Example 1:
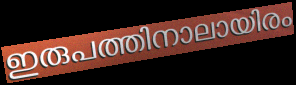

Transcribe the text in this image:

ഇരുപത്തിനാലായിരം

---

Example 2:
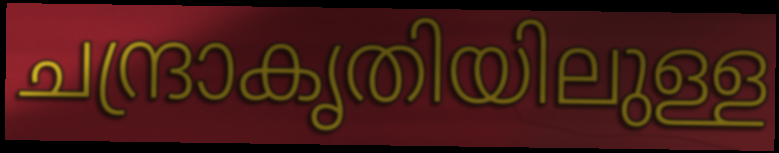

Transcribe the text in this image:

ചന്ദ്രാകൃതിയിലുള്ള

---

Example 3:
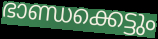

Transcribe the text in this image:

ഭാണ്ഡക്കെട്ടും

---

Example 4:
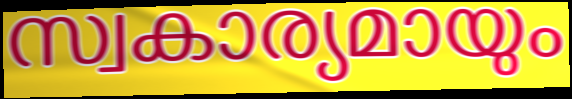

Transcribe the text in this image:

സ്വകാര്യമായും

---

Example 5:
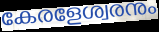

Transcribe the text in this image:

കേരളേശ്വരനും